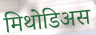
मिथोडिअस